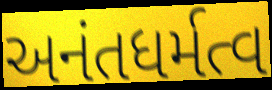
અનંતધર્મત્વ